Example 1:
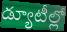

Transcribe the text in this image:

డ్యూటీల్లో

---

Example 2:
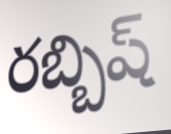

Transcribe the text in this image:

రబ్బిష్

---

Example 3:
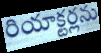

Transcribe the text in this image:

రియాక్టర్లను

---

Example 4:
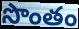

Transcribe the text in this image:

సొంతం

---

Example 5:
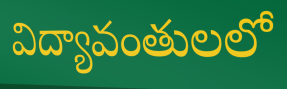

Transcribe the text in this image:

విద్యావంతులలో